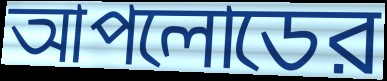
আপলোডের